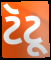
ટૅટૂ